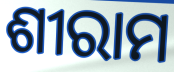
ଶୀରାମ